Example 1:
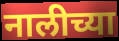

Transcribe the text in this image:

नालीच्या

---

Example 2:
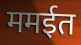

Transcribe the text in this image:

ममईत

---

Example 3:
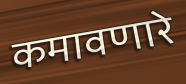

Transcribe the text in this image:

कमावणारे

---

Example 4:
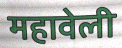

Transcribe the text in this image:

महावेली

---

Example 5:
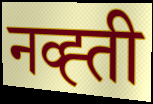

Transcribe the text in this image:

नव्ह्ती